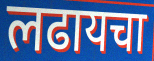
लढायचा